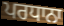
ਪਰਧਾਨਾ